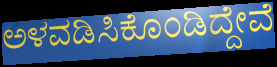
ಅಳವಡಿಸಿಕೊಂಡಿದ್ದೇವೆ